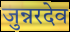
जुन्नरदेव